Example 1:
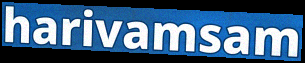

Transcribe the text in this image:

harivamsam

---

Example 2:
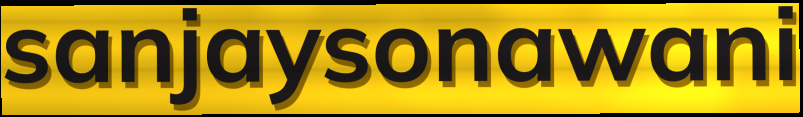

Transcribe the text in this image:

sanjaysonawani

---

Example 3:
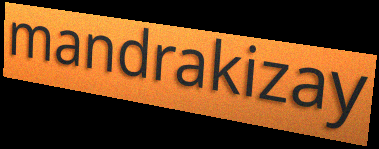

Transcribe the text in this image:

mandrakizay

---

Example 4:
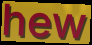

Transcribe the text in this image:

hew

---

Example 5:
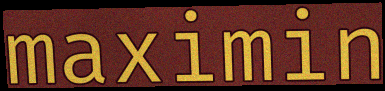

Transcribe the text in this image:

maximin